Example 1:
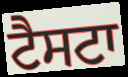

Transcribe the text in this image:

ਟੈਸਟਾ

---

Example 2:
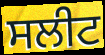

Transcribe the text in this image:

ਸਲੀਟ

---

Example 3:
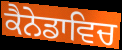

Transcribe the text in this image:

ਕੈਨੇਡਾਵਿਚ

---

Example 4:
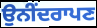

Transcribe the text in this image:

ਉਨੀਂਦਰਾਪਣ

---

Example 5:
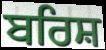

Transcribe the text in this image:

ਬਰਿਸ਼